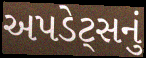
અપડેટ્સનું